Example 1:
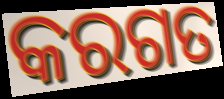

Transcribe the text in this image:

କରଗତ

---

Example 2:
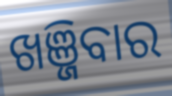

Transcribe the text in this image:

ଖଞ୍ଜିବାର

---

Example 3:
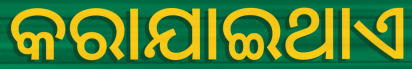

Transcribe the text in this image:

କରାଯାଇଥାଏ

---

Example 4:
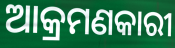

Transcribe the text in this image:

ଆକ୍ରମଣକାରୀ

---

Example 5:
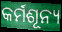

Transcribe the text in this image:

କର୍ମଶୂନ୍ୟ